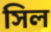
সিল